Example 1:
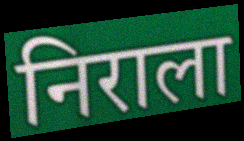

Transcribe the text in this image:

निराला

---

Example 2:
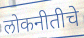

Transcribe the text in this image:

लोकनीतीचे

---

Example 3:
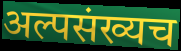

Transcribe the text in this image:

अल्पसंख्यच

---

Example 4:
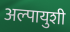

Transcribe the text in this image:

अल्पायुशी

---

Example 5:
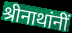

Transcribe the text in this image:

श्रीनाथांनीं